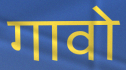
गावो